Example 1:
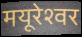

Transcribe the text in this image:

मयूरेश्वर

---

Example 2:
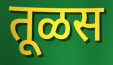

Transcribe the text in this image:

तूळस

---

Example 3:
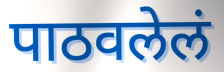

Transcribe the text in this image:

पाठवलेलं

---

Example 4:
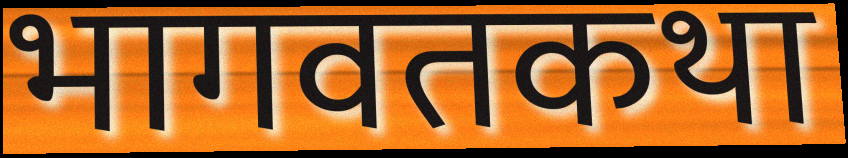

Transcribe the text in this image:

भागवतकथा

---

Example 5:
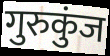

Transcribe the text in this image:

गुरुकुंज